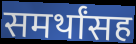
समर्थांसह